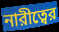
নারীত্বের